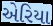
એરિયા